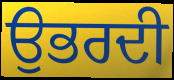
ਉਭਰਦੀ